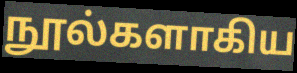
நூல்களாகிய